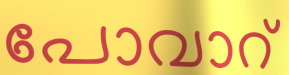
പോവാറ്